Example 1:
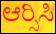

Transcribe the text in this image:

ಆರ್‍ಸಿಸಿ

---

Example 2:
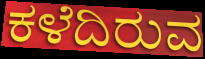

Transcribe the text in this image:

ಕಳೆದಿರುವ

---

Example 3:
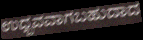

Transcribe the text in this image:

ಉಧ್ಬವವಾಗಬಹುದಾದ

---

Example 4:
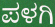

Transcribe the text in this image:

ಪಳಗಿ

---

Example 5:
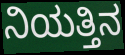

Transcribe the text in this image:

ನಿಯತ್ತಿನ